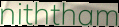
niththam